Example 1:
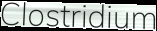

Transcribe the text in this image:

Clostridium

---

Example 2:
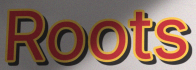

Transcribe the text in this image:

Roots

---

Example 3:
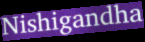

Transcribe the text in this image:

Nishigandha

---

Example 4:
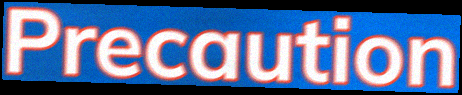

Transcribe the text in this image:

Precaution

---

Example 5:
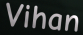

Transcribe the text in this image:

Vihan